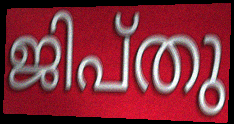
ജിപ്തു